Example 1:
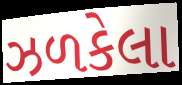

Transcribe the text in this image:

ઝળકેલા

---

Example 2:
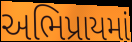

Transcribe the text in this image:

અભિપ્રાયમાં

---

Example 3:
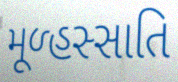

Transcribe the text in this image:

મૂળ્હસ્સાતિ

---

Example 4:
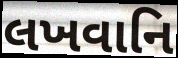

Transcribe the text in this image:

લખવાનિ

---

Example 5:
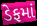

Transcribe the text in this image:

ડેફમાં